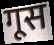
गूस